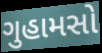
ગુહામસો